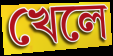
খেলে